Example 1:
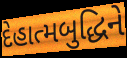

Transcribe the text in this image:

દેહાત્મબુદ્ધિને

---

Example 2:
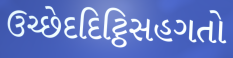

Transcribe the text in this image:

ઉચ્છેદદિટ્ઠિસહગતો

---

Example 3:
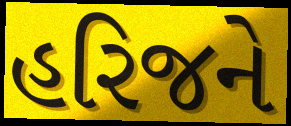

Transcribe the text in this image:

હરિજને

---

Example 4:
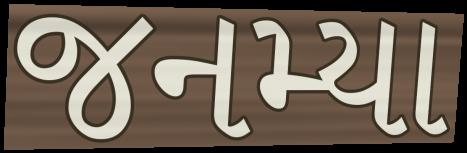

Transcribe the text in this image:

જનમ્યા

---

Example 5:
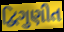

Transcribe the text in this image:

દ્વિગુણીત